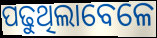
ପଢୁଥିଲାବେଳେ